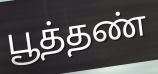
பூத்தண்